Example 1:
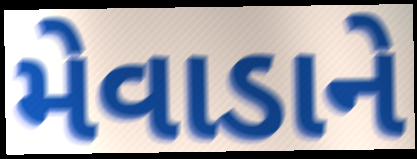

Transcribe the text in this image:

મેવાડાને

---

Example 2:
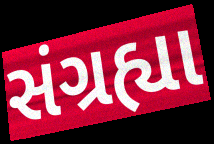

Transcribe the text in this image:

સંગ્રહ્યા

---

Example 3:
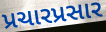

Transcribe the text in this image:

પ્રચારપ્રસાર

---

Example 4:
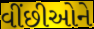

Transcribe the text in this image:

વીંછીઓને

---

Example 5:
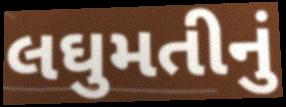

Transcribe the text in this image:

લઘુમતીનું